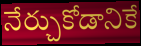
నేర్చుకోడానికే